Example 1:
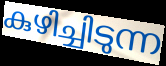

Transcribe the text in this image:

കുഴിച്ചിടുന്ന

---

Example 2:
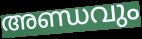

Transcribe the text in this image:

അണ്ഡവും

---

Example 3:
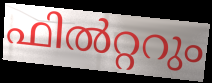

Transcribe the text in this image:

ഫിൽറ്ററും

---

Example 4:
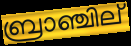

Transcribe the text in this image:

ബ്രാഞ്ചില്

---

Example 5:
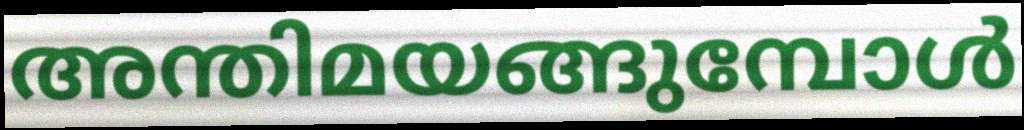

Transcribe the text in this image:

അന്തിമയങ്ങുമ്പോൾ